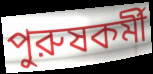
পুরুষকর্মী